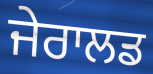
ਜੇਰਾਲਡ